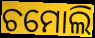
ଚମୋଲି